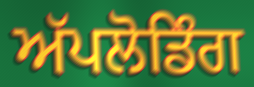
ਅੱਪਲੋਡਿੰਗ